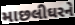
માછલીઘરને